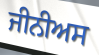
ਜੀਨੀਅਸ